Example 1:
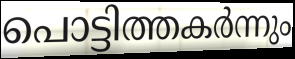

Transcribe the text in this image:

പൊട്ടിത്തകർന്നും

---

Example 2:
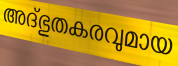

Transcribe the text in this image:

അദ്ഭുതകരവുമായ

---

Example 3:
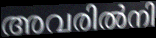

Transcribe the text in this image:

അവരിൽനി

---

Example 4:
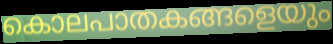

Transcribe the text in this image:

കൊലപാതകങ്ങളെയും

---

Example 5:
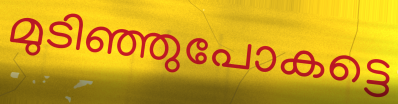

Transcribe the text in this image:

മുടിഞ്ഞുപോകട്ടെ